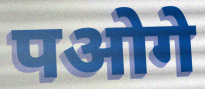
पओगे